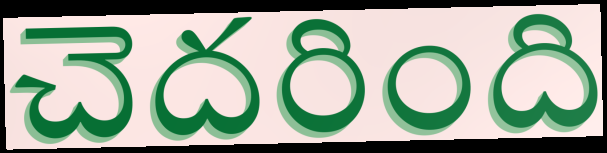
చెదరింది